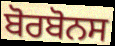
ਬੋਰਬੋਨਸ